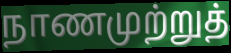
நாணமுற்றுத்